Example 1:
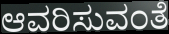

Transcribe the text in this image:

ಆವರಿಸುವಂತೆ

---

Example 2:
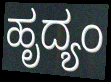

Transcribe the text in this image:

ಹೃದ್ಯಂ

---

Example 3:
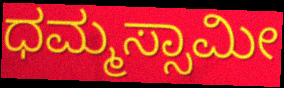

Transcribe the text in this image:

ಧಮ್ಮಸ್ಸಾಮೀ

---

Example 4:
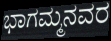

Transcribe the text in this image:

ಭಾಗಮ್ಮನವರ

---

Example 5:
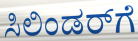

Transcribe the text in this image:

ಸಿಲಿಂಡರ್‌ಗೆ